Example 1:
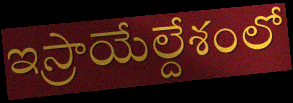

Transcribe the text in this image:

ఇస్రాయేల్దేశంలో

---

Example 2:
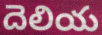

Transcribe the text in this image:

దెలియ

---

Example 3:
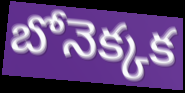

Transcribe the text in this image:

బోనెక్కక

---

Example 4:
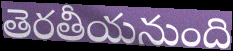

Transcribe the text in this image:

తెరతీయనుంది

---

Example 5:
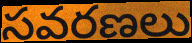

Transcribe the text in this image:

సవరణలు